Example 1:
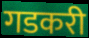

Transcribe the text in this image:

गडकरी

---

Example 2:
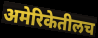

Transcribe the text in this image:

अमेरिकेतीलच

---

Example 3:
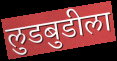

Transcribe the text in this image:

लुडबुडीला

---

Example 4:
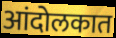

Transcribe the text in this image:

आंदोलकात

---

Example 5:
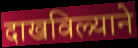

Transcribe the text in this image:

दाखविल्याने